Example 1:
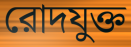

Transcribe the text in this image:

রোদযুক্ত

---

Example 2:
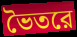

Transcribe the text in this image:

ভৈতরে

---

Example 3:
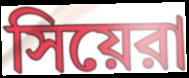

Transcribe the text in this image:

সিয়েরা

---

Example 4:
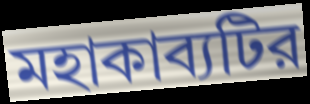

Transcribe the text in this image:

মহাকাব্যটির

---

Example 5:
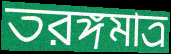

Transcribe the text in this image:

তরঙ্গমাত্র